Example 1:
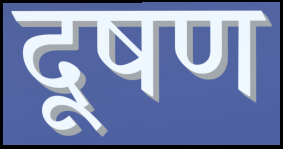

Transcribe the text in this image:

दूषण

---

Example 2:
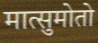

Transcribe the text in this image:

मात्सुमोतो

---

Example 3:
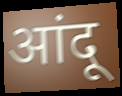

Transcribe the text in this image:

आंदू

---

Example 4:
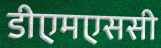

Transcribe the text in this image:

डीएमएससी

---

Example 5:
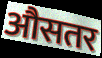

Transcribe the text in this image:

औसतर